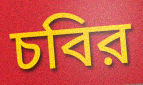
চবির